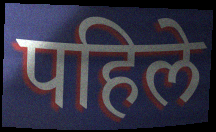
पहिले